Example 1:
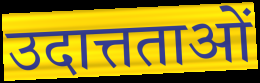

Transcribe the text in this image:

उदात्तताओं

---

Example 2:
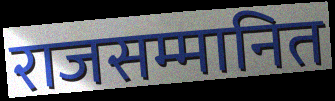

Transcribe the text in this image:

राजसम्मानित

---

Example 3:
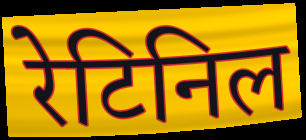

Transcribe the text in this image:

रेटिनिल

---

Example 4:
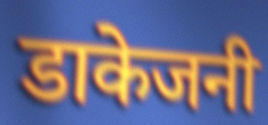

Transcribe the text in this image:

डाकेजनी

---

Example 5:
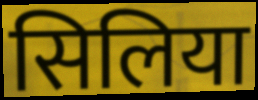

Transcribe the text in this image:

सिलिया